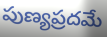
పుణ్యప్రదమే